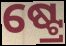
ଷ୍ଟ୍ରେ